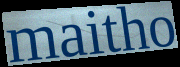
maitho